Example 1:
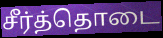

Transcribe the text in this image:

சீர்த்தொடை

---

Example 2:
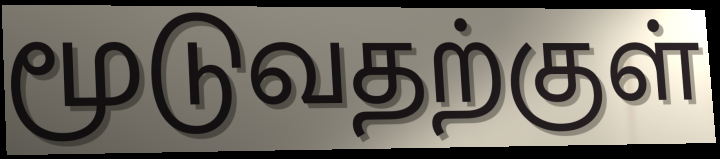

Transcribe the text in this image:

மூடுவதற்குள்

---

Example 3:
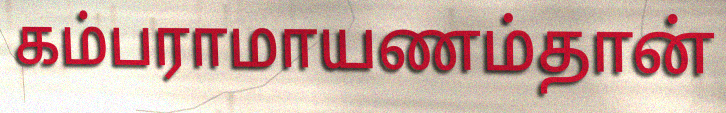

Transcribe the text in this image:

கம்பராமாயணம்தான்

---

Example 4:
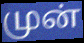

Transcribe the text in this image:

முன்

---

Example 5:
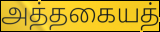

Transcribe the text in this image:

அத்தகையத்